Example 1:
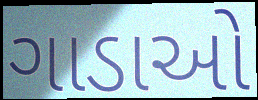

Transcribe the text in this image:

ગાડાઓ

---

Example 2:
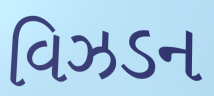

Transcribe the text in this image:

વિઝડન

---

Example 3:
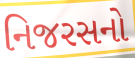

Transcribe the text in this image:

નિજરસનો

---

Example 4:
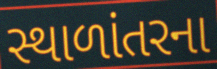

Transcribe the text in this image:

સ્થાળાંતરના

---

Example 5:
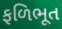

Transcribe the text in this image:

ફળિભૂત